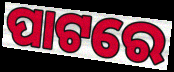
ପାଟରେ